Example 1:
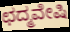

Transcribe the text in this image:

ಛದ್ಮವೇಷಿ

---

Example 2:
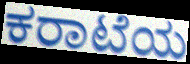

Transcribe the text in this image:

ಕರಾಟೆಯ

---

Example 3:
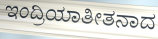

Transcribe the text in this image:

ಇಂದ್ರಿಯಾತೀತನಾದ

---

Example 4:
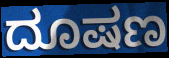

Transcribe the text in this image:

ದೂಷಣ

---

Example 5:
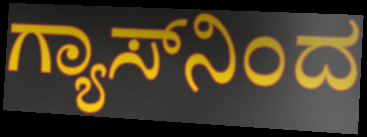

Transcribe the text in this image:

ಗ್ಯಾಸ್‌ನಿಂದ